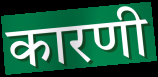
कारणी